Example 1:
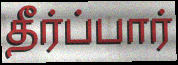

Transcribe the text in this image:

தீர்ப்பார்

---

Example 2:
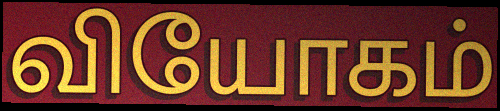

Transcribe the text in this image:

வியோகம்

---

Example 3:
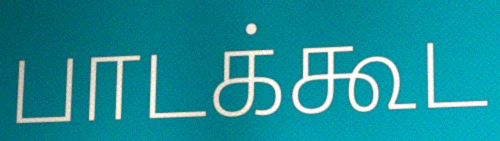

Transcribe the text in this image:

பாடக்கூட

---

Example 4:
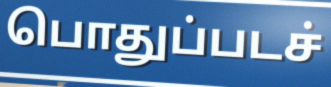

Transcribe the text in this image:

பொதுப்படச்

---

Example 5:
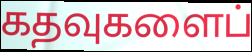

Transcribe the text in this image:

கதவுகளைப்